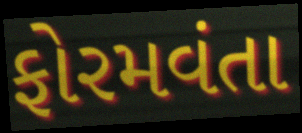
ફોરમવંતા